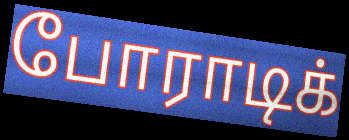
போராடிக்